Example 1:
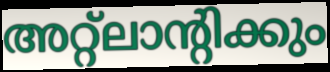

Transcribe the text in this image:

അറ്റ്ലാന്റിക്കും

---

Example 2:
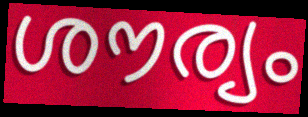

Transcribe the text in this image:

ശൗര്യം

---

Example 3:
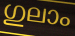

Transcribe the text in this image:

ഗുലാം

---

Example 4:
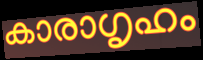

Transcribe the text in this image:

കാരാഗൃഹം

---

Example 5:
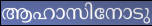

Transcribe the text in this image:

ആഹാസിനോടു